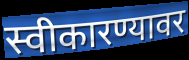
स्वीकारण्यावर